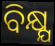
ବିକ୍ଷ୍ଯ